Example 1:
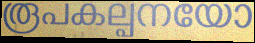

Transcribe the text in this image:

രൂപകല്പനയോ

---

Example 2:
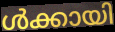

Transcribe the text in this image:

ൾക്കായി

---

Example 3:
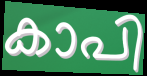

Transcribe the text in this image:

കാപി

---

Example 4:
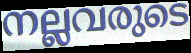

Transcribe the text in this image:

നല്ലവരുടെ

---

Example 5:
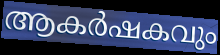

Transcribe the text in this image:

ആകർഷകവും